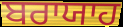
ਬਰਾਯਾਹ